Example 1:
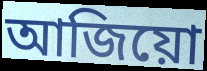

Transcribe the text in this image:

আজিয়ো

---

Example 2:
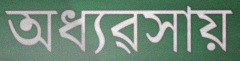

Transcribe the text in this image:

অধ্যৱসায়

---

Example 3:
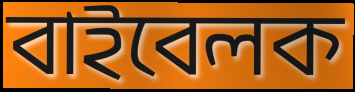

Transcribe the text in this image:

বাইবেলক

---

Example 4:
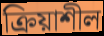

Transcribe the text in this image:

ক্ৰিয়াশীল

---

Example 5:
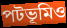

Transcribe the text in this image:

পটভূমিও